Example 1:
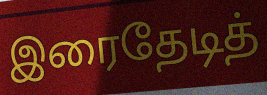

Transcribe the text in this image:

இரைதேடித்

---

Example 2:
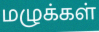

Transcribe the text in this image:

மழுக்கள்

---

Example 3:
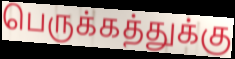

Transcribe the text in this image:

பெருக்கத்துக்கு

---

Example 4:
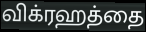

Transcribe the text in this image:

விக்ரஹத்தை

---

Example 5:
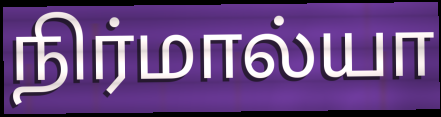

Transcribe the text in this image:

நிர்மால்யா